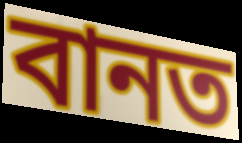
বানত